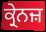
ਕ੍ਰੇਨਜ਼